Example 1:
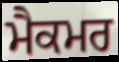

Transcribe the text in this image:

ਮੈਕਮਰ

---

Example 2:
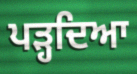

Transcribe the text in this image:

ਪੜ੍ਹਦਿਆ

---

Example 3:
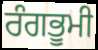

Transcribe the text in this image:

ਰੰਗਭੂਮੀ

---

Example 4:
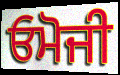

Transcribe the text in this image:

ਓਮੋਜੀ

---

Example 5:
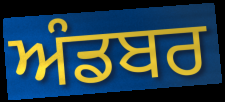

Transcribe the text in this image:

ਅੰਡਬਰ